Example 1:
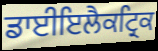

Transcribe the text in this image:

ਡਾਈਇਲੈਕਟ੍ਰਿਕ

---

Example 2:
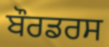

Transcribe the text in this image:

ਬੌਰਡਰਸ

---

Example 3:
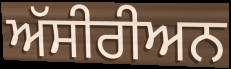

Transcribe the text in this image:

ਅੱਸੀਰੀਅਨ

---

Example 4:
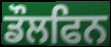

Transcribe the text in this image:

ਡੌਲਫਿਨ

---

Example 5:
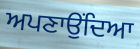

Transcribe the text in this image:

ਅਪਣਾਉਂਦਿਆ